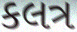
કલત્ર